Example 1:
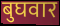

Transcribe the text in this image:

बुघवार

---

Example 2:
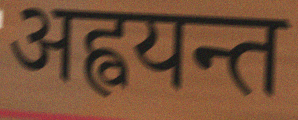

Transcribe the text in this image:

अह्वयन्त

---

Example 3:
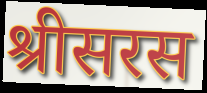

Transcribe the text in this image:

श्रीसरस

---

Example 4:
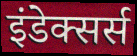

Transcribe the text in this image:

इंडेक्सर्स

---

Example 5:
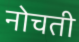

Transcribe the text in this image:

नोचती